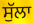
ਸੁੱਲਾ